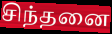
சிந்தனை